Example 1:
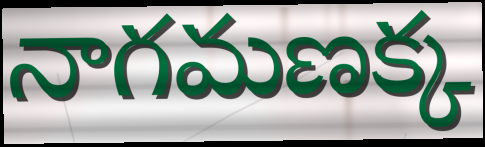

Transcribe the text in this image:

నాగమణక్క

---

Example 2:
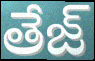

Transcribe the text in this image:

తేజ్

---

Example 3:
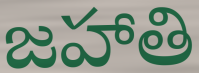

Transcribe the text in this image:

జహాతి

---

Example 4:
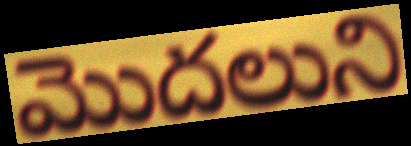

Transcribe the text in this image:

మొదలుని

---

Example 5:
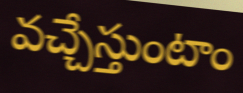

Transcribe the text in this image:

వచ్చేస్తుంటాం